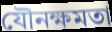
যৌনক্ষমতা